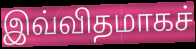
இவ்விதமாகச்